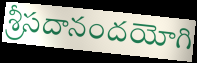
శ్రీసదానందయోగి